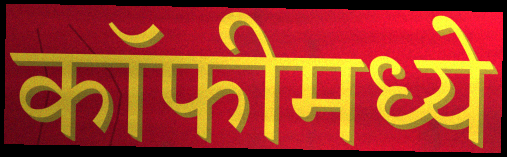
कॉफीमध्ये